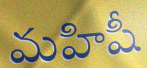
మహిషీ